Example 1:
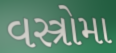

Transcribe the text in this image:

વસ્ત્રોમા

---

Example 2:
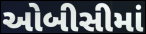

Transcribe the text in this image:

ઓબીસીમાં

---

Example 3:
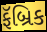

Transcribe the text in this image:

ફૅબ્રિક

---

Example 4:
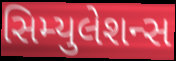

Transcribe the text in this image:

સિમ્યુલેશન્સ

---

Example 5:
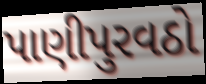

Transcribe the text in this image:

પાણીપુરવઠો